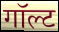
गॉल्ट